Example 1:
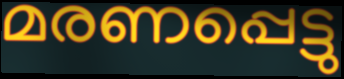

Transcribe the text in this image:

മരണപ്പെട്ടു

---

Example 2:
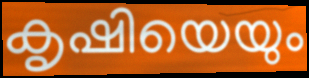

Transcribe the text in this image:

കൃഷിയെയും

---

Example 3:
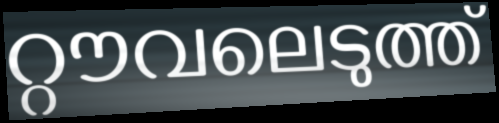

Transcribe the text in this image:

റ്റൗവലെടുത്ത്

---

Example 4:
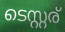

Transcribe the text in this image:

ടെസ്റ്റര്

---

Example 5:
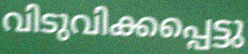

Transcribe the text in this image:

വിടുവിക്കപ്പെട്ടു